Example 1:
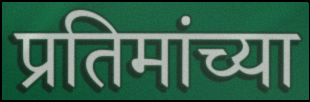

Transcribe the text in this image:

प्रतिमांच्या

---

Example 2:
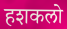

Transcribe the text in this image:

हशकलो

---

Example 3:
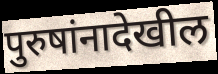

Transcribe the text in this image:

पुरुषांनादेखील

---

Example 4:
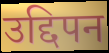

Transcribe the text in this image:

उद्दिपन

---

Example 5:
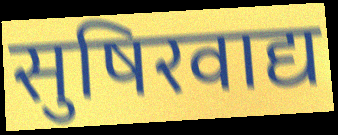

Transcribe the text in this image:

सुषिरवाद्य